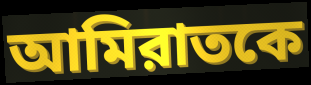
আমিরাতকে